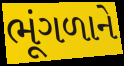
ભૂંગળાને